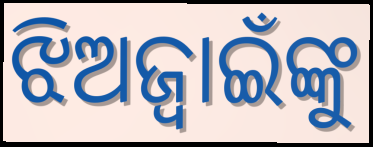
ଝିଅଜ୍ୱାଇଁଙ୍କୁ